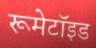
रूमेटॉइड